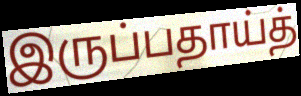
இருப்பதாய்த்